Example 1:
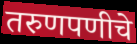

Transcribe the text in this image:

तरुणपणीचे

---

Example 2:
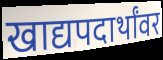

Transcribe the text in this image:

खाद्यपदार्थांवर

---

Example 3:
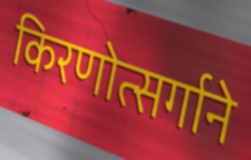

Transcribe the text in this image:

किरणोत्सर्गाने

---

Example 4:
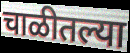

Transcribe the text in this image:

चाळीतल्या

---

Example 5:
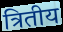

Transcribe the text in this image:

त्रितीय